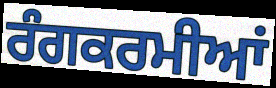
ਰੰਗਕਰਮੀਆਂ